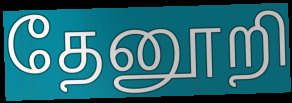
தேனூறி